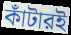
কাঁটারই